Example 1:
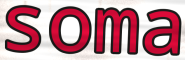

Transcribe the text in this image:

soma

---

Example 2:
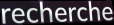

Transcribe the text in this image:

recherche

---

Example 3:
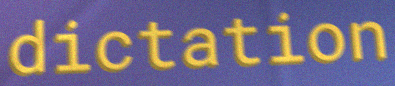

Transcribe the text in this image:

dictation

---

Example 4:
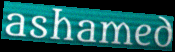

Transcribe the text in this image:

ashamed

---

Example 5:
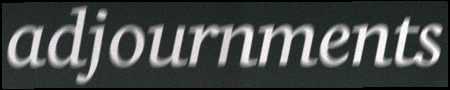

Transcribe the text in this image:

adjournments